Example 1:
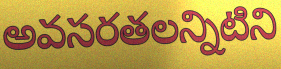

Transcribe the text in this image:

అవసరతలన్నిటిని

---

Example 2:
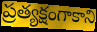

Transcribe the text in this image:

ప్రత్యక్షంగాకాని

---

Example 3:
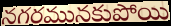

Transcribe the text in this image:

నగరమునకుపోయి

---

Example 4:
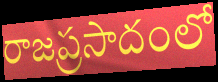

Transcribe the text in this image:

రాజప్రసాదంలో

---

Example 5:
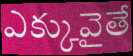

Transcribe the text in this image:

ఎక్కువైతే